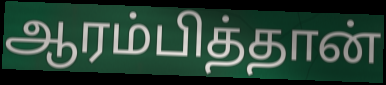
ஆரம்பித்தான்